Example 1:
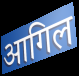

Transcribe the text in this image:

आगिल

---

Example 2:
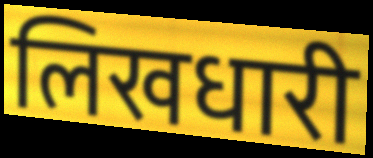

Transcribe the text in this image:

लिखधारी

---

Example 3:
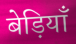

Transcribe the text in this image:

बेड़ियाँ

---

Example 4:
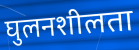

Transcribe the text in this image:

घुलनशीलता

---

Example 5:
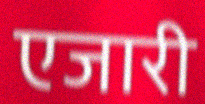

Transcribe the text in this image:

एजारी